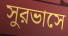
সুরভাসে